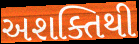
અશક્તિથી